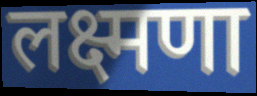
लक्ष्मणा